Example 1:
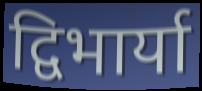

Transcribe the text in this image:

द्विभार्या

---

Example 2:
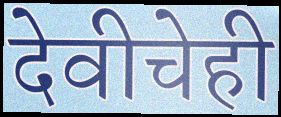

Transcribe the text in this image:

देवीचेही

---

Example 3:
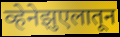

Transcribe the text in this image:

व्हेनेझुएलातून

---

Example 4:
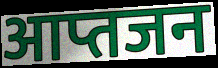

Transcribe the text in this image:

आप्तजन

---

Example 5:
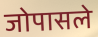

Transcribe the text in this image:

जोपासले